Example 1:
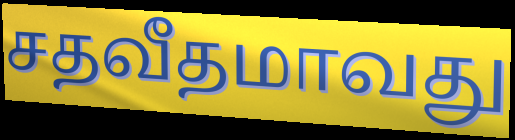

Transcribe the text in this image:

சதவீதமாவது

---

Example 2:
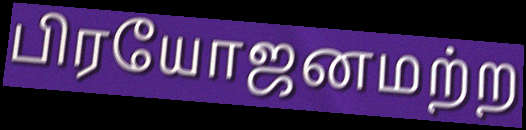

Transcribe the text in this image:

பிரயோஜனமற்ற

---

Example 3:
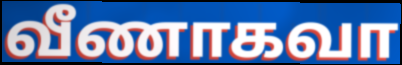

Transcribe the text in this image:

வீணாகவா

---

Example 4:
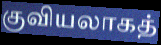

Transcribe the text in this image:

குவியலாகத்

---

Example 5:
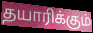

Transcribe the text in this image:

தயாரிக்கும்